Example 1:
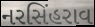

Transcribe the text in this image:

નરસિંહરાવ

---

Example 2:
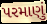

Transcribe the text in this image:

પરમાણું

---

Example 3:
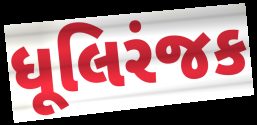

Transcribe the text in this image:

ધૂલિરંજક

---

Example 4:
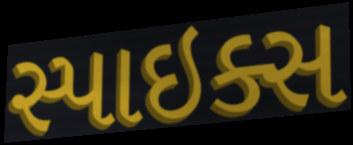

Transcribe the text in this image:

સ્પાઇક્સ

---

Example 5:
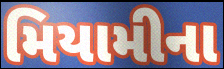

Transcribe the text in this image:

મિયામીના